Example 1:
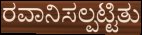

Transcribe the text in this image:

ರವಾನಿಸಲ್ಪಟ್ಟಿತು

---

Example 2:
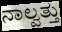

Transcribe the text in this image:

ನಾಲ್ವತ್ತು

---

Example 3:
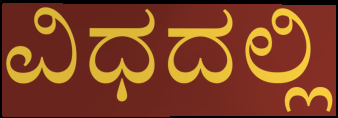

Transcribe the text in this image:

ವಿಧದಲ್ಲಿ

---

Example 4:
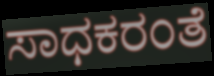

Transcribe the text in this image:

ಸಾಧಕರಂತೆ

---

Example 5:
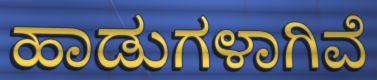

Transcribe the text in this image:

ಹಾಡುಗಳಾಗಿವೆ